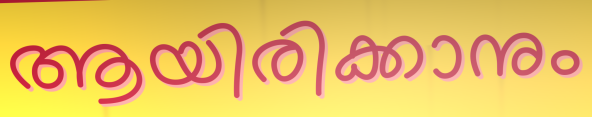
ആയിരിക്കാനും